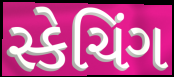
સ્કેચિંગ